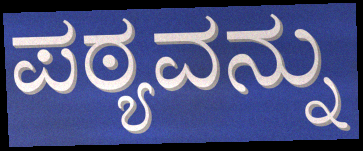
ಪಠ್ಯವನ್ನು